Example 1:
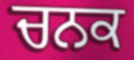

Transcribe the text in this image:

ਚਨਕ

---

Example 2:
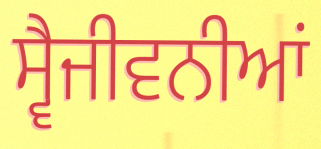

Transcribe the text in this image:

ਸ੍ਵੈਜੀਵਨੀਆਂ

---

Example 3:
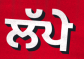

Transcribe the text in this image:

ਲੱਪੇ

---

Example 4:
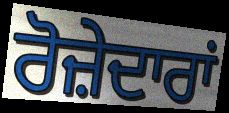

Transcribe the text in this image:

ਰੋਜ਼ੇਦਾਰਾਂ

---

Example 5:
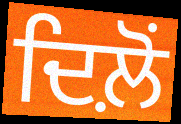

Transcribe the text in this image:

ਦਿਲ਼ੋਂ